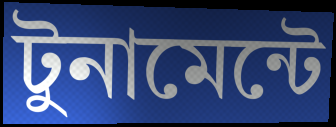
টুনামেন্টে